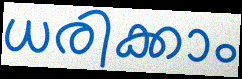
ധരിക്കാം